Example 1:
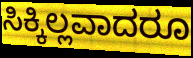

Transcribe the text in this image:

ಸಿಕ್ಕಿಲ್ಲವಾದರೂ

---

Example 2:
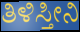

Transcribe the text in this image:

ತಿಳಿಸ್ತೀನಿ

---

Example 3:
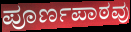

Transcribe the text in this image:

ಪೂರ್ಣಪಾಠವು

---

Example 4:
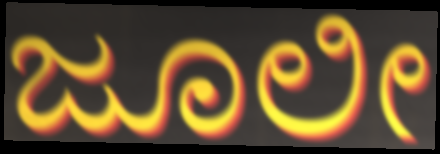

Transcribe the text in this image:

ಜೂಲೀ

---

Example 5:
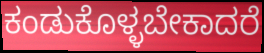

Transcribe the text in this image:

ಕಂಡುಕೊಳ್ಳಬೇಕಾದರೆ